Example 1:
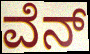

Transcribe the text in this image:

ವೆನ್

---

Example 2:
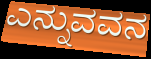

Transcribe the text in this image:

ಎನ್ನುವವನ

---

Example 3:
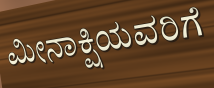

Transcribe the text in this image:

ಮೀನಾಕ್ಷಿಯವರಿಗೆ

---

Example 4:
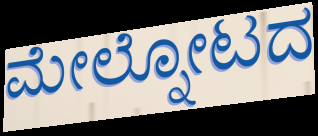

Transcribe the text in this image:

ಮೇಲ್ನೋಟದ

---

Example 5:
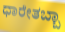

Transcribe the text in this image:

ಧಾರೇತಬ್ಬಾ